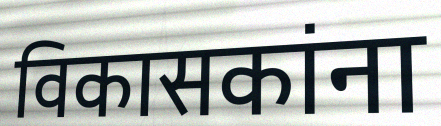
विकासकांना